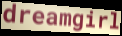
dreamgirl